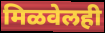
मिळवेलही